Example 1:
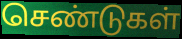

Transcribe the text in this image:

செண்டுகள்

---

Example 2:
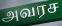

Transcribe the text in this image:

அவரச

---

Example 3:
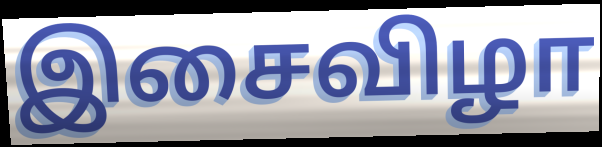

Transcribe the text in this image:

இசைவிழா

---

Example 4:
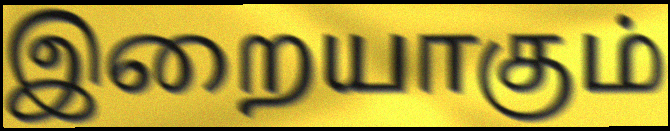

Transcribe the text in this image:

இறையாகும்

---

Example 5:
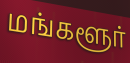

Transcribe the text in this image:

மங்களூர்